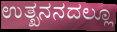
ಉತ್ಖನನದಲ್ಲೂ